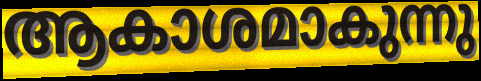
ആകാശമാകുന്നു